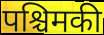
पश्चिमकी